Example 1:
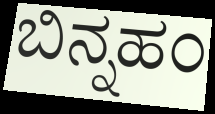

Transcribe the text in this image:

ಬಿನ್ನಹಂ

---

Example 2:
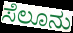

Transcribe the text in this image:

ಸೆಲೂನು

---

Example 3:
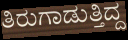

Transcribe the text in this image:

ತಿರುಗಾಡುತ್ತಿದ್ದ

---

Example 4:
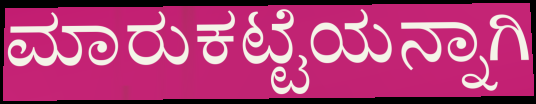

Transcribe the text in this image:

ಮಾರುಕಟ್ಟೆಯನ್ನಾಗಿ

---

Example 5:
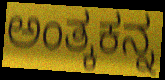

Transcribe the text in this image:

ಅಂತ್ಕಕನ್ನ